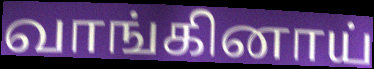
வாங்கினாய்